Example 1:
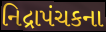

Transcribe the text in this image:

નિદ્રાપંચકના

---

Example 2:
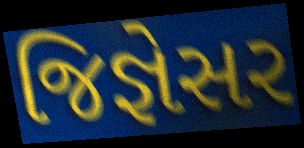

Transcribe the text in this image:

જિજ્ઞેસર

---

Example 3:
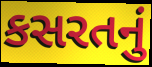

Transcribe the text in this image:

કસરતનું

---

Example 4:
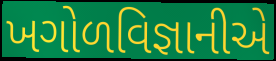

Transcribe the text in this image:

ખગોળવિજ્ઞાનીએ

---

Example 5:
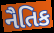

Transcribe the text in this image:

નૈતિક